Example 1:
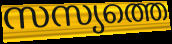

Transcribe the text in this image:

സസ്യത്തെ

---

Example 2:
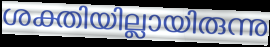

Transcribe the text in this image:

ശക്തിയില്ലായിരുന്നു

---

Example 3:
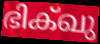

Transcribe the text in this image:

ഭിക്ഖു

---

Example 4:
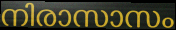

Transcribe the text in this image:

നിരാസാസം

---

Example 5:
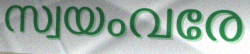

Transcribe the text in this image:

സ്വയംവരേ